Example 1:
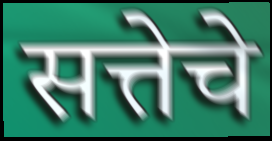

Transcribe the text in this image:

सत्तेचे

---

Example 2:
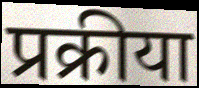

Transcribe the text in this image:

प्रक्रीया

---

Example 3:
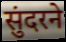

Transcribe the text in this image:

सुंदरने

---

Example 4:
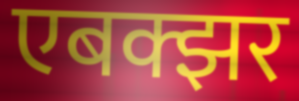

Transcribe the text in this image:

एबक्झर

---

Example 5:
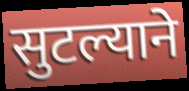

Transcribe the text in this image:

सुटल्याने